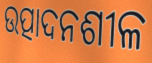
ଉତ୍ପାଦନଶୀଳ